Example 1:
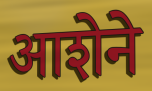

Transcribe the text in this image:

आशेने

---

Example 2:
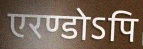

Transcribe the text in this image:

एरण्डोऽपि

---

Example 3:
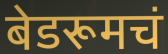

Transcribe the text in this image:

बेडरूमचं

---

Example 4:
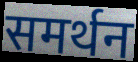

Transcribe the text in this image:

समर्थन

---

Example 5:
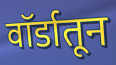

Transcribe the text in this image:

वॉर्डातून